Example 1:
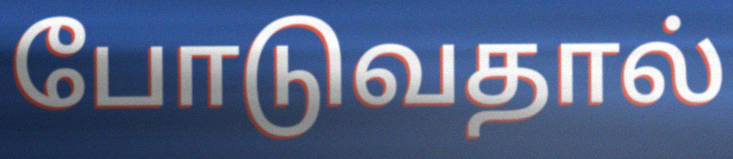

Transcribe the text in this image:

போடுவதால்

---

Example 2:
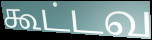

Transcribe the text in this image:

கூட்டவ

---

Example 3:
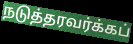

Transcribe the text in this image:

நடுத்தரவர்க்கப்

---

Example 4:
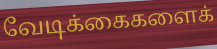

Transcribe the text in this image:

வேடிக்கைகளைக்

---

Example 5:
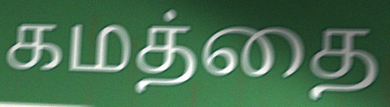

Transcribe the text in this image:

கமத்தை